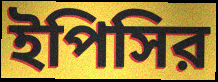
ইপিসির